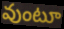
వుంటూ